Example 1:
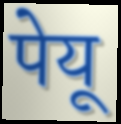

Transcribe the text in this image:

पेयू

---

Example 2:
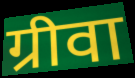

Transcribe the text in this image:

ग्रीवा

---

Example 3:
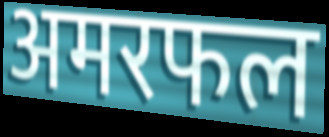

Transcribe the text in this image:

अमरफल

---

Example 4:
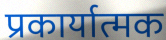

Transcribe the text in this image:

प्रकार्यात्मक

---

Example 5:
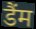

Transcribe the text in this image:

डैंम